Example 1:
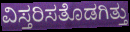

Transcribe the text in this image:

ವಿಸ್ತರಿಸತೊಡಗಿತ್ತು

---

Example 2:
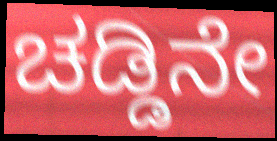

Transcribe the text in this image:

ಚಡ್ಡಿನೇ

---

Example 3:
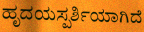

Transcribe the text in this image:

ಹೃದಯಸ್ಪರ್ಶಿಯಾಗಿದೆ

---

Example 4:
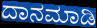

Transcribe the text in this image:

ದಾನಮಾಡಿ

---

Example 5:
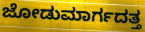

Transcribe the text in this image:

ಜೋಡುಮಾರ್ಗದತ್ತ